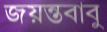
জয়ন্তবাবু